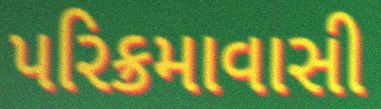
પરિક્રમાવાસી